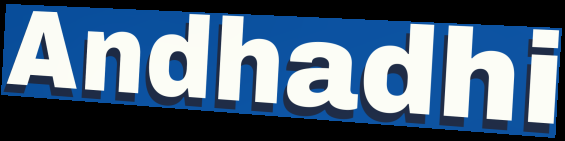
Andhadhi